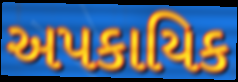
અપકાયિક